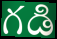
గడి